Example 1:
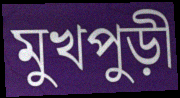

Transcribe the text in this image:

মুখপুড়ী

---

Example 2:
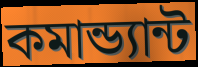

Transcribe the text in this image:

কমান্ড্যান্ট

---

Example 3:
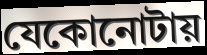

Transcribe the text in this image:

যেকোনোটায়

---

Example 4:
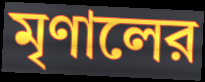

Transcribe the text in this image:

মৃণালের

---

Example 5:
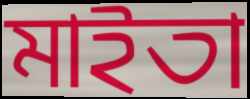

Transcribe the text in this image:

মাইতা